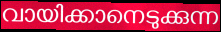
വായിക്കാനെടുക്കുന്ന